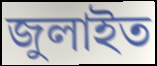
জুলাইত